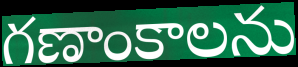
గణాంకాలను